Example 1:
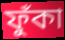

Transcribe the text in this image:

ফুঁকা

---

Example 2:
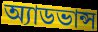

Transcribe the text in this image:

অ্যাডভান্স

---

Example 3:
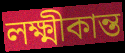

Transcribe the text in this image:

লক্ষ্মীকান্ত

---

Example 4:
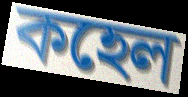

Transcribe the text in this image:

কহেল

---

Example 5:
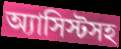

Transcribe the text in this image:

অ্যাসিস্টসহ